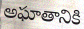
అఘాతానికి